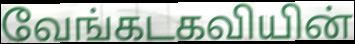
வேங்கடகவியின்